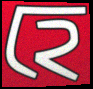
হে